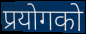
प्रयोगको